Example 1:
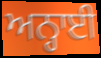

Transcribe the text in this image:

ਅਨ੍ਹਾਈ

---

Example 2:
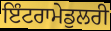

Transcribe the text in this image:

ਇੰਟਰਾਮੇਡੁਲਰੀ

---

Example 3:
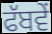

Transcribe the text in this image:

ਫੱਬਵੇਂ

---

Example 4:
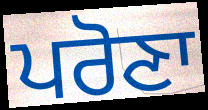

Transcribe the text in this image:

ਪਰੋਣਾ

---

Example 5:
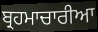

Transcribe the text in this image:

ਬ੍ਰਹਮਾਚਾਰੀਆ